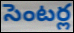
సెంటర్ల